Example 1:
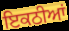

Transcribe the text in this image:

ਇਕਠੀਆਂ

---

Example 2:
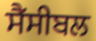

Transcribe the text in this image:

ਸੈਂਸੀਬਲ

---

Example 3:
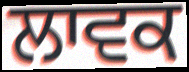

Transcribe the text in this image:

ਲਾਵਕ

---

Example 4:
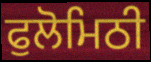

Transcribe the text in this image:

ਫੁਲੋਮਿਠੀ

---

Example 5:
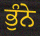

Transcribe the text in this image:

ਭੁੰਨੇ